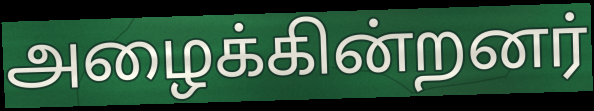
அழைக்கின்றனர்